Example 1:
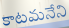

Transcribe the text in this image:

కాటమనేని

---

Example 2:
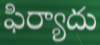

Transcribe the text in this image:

ఫిర్యాదు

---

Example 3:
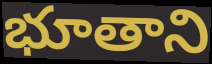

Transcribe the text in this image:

భూతాని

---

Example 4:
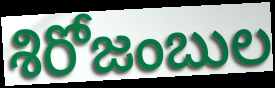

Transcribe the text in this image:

శిరోజంబుల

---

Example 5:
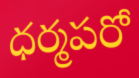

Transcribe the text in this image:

ధర్మపరో